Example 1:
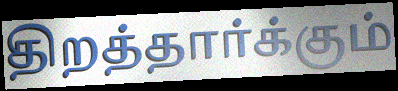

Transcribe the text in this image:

திறத்தார்க்கும்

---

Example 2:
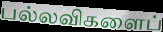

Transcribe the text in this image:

பல்லவிகளைப்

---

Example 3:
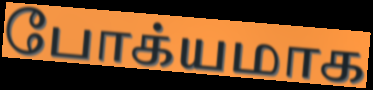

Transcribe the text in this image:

போக்யமாக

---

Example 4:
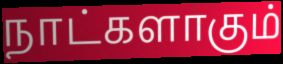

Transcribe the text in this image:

நாட்களாகும்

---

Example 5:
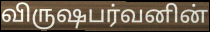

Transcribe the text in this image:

விருஷபர்வனின்